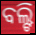
ବଲ୍ଟି